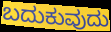
ಬದುಕುವುದು